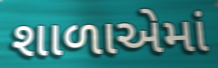
શાળાએમાં